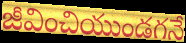
జీవించియుండగనే